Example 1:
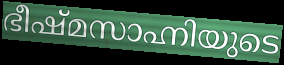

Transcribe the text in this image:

ഭീഷ്മസാഹ്നിയുടെ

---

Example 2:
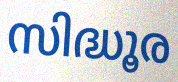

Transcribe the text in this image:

സിദ്ധൂര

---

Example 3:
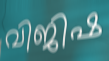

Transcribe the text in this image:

വിജിഷ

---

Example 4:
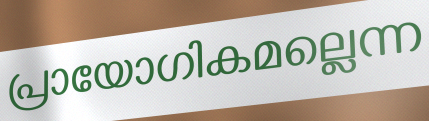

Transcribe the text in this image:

പ്രായോഗികമല്ലെന്ന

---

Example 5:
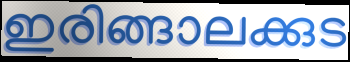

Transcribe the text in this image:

ഇരിങ്ങാലക്കുട